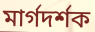
মার্গদর্শক